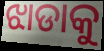
ଝାଡାକୁ